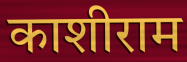
काशीराम